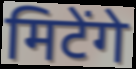
मिटेंगे